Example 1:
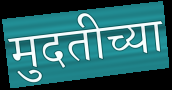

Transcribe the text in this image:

मुदतीच्या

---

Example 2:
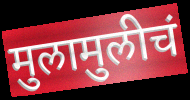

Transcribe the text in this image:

मुलामुलीचं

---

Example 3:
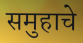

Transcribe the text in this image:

समुहाचे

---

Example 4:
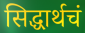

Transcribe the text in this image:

सिद्धार्थचं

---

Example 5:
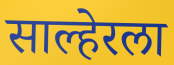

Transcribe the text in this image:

साल्हेरला